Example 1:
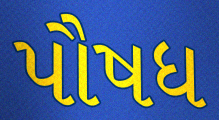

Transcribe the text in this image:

પૌષધ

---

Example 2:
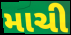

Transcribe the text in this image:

માચી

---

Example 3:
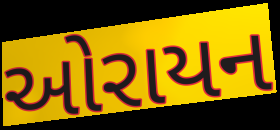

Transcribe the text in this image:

ઓરાયન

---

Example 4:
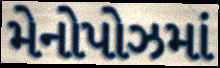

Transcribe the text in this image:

મેનોપોઝમાં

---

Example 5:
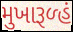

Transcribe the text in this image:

મુખારૂળ્હં